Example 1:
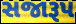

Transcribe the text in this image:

સજારૂપ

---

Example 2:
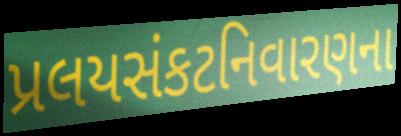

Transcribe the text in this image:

પ્રલયસંકટનિવારણના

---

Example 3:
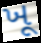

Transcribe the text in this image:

ખૂ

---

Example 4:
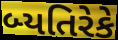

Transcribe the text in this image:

બ્યતિરેકે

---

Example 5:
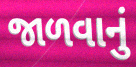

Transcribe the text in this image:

જાળવાનું